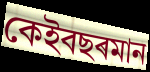
কেইবছৰমান